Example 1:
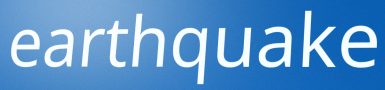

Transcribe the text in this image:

earthquake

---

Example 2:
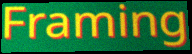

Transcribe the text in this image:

Framing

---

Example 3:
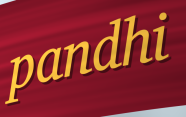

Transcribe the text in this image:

pandhi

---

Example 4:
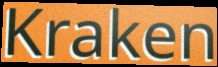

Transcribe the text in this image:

Kraken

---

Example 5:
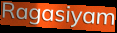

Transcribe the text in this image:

Ragasiyam